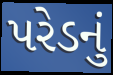
પરેડનું